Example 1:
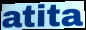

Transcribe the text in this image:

atita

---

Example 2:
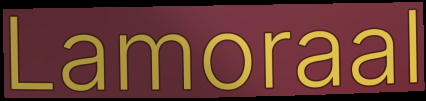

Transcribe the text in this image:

Lamoraal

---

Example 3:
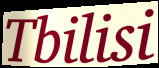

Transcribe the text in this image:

Tbilisi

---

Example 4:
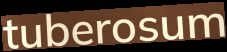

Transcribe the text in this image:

tuberosum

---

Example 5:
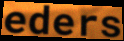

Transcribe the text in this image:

eders